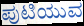
ಪುಟಿಯುವ